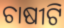
ଚାଷୀଟି